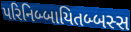
પરિનિબ્બાયિતબ્બસ્સ